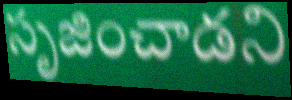
సృజించాడని